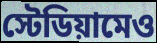
স্টেডিয়ামেও